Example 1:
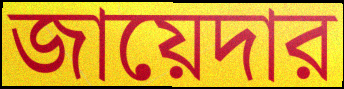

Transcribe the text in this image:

জায়েদার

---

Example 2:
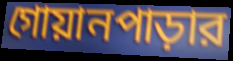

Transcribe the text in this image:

গোয়ানপাড়ার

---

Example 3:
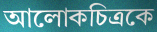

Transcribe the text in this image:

আলোকচিত্রকে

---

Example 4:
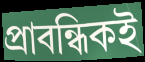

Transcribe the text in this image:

প্রাবন্ধিকই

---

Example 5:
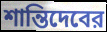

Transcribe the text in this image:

শান্তিদেবের